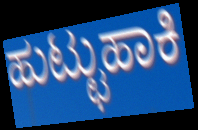
ಹುಟ್ಟುಹಾಕಿ